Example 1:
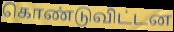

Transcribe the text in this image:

கொண்டுவிட்டன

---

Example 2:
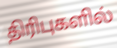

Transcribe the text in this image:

திரிபுகளில்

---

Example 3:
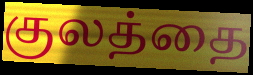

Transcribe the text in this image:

குலத்தை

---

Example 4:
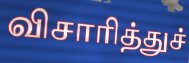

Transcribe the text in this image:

விசாரித்துச்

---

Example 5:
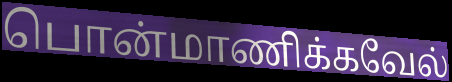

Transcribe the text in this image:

பொன்மாணிக்கவேல்